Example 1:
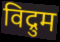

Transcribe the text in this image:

विद्रुम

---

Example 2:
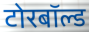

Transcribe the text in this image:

टोरबॉल्ड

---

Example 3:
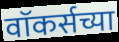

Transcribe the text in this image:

वॉकर्सच्या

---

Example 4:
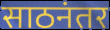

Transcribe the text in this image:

साठनंतर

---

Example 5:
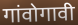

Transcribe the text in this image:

गांवोगावी